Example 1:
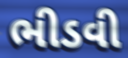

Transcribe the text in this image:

ભીડવી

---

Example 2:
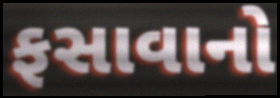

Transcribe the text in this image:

ફસાવાનો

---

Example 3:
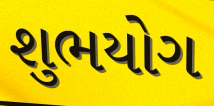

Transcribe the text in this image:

શુભયોગ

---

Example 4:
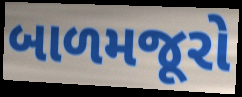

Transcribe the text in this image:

બાળમજૂરો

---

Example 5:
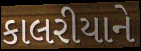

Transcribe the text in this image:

કાલરીયાને